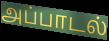
அப்பாடல்